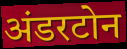
अंडरटोन